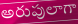
అరుపులాగా